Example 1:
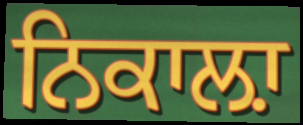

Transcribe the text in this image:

ਨਿਕਾਲ਼ਾ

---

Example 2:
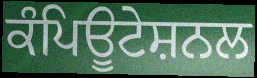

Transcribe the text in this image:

ਕੰਪਿਊਟੇਸ਼ਨਲ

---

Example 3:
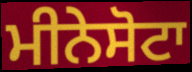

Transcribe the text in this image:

ਮੀਨੇਸੋਟਾ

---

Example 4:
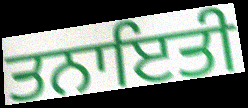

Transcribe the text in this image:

ਤਨਾਇਤੀ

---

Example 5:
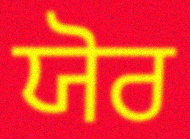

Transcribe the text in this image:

ਯੋਰ